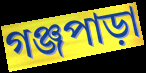
গঞ্জপাড়া